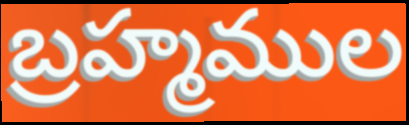
బ్రహ్మముల